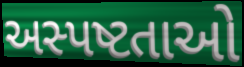
અસ્પષ્ટતાઓ